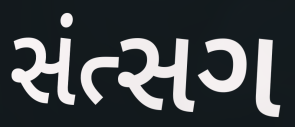
સંત્સગ